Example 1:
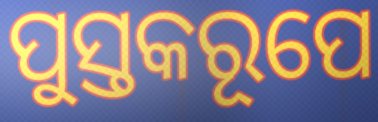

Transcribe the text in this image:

ପୁସ୍ତକରୂପେ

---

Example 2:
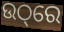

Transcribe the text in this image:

ଉଠ୍‌ରେ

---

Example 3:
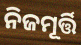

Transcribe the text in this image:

ନିଜମୂର୍ତ୍ତି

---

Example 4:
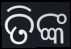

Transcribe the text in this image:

ତିଙ୍କ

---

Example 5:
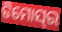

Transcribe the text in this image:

ଡିମୋସ୍‌ର